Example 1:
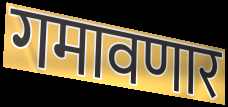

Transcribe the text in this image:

गमावणार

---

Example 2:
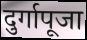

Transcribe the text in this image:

दुर्गापूजा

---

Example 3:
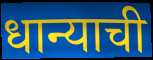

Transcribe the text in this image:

धान्याची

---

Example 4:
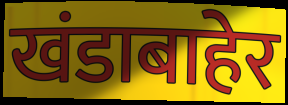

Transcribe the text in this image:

खंडाबाहेर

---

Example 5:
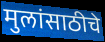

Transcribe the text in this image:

मुलांसाठीचे